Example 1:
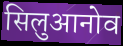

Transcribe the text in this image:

सिलुआनोव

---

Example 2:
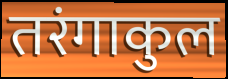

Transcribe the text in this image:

तरंगाकुल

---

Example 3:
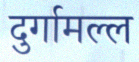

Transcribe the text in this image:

दुर्गामल्ल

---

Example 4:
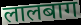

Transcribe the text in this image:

लालबाग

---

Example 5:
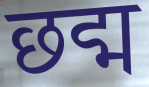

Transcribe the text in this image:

छद्म